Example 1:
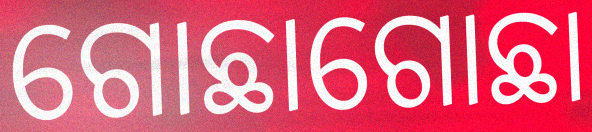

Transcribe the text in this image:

ଗୋଛାଗୋଛା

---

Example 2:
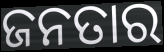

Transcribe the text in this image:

ଜନତାର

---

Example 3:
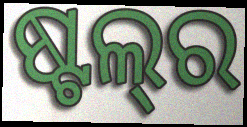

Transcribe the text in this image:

ଷ୍ଟଲ୍‌ର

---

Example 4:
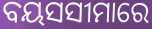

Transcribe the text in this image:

ବୟସସୀମାରେ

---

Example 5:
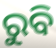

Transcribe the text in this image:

ରୁବି